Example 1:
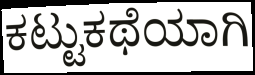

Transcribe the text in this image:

ಕಟ್ಟುಕಥೆಯಾಗಿ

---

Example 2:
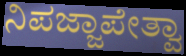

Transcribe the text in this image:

ನಿಪಜ್ಜಾಪೇತ್ವಾ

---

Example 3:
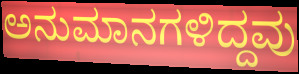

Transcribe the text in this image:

ಅನುಮಾನಗಳಿದ್ದವು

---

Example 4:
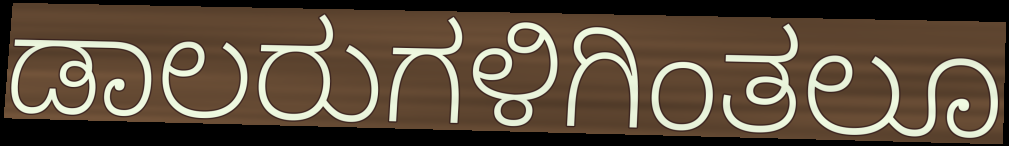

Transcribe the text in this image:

ಡಾಲರುಗಳಿಗಿಂತಲೂ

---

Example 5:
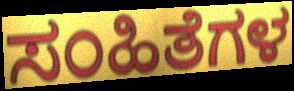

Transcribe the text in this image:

ಸಂಹಿತೆಗಳ